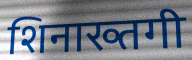
शिनाख्तगी